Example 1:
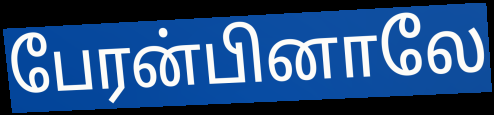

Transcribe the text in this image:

பேரன்பினாலே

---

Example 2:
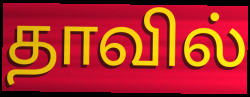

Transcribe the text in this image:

தாவில்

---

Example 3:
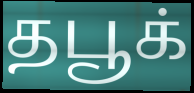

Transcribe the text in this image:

தபூக்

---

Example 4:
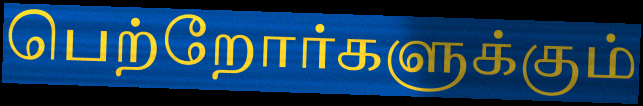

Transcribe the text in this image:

பெற்றோர்களுக்கும்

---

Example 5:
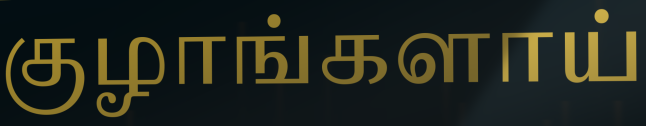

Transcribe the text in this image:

குழாங்களாய்